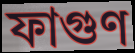
ফাগুণ